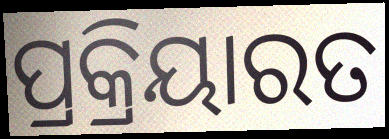
ପ୍ରକ୍ରିୟାରତ